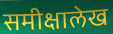
समीक्षालेख